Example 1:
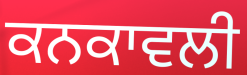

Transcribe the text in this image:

ਕਨਕਾਵਲੀ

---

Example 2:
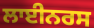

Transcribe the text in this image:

ਲਾਈਨਰਸ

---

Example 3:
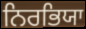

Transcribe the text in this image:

ਨਿਰਭਿਯਾ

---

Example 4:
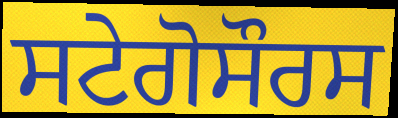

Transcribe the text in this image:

ਸਟੇਗੋਸੌਰਸ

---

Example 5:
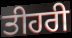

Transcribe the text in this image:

ਤੀਹਰੀ